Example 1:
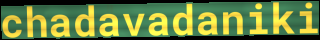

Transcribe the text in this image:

chadavadaniki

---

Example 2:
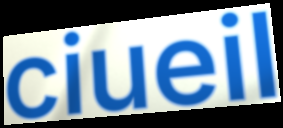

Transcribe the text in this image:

ciueil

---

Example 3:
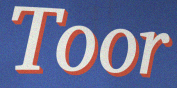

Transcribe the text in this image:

Toor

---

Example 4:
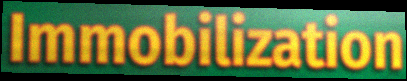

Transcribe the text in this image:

Immobilization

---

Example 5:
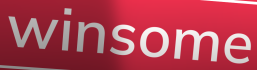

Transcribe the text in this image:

winsome